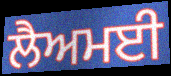
ਲੈਅਮਈ